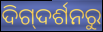
ଦିଗ୍‌ଦର୍ଶନରୁ